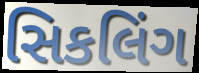
સિકલિંગ